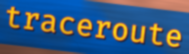
traceroute